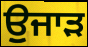
ਉੁਜਾੜ